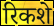
रिकशे